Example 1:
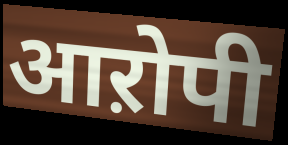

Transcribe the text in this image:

आऱोपी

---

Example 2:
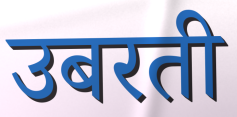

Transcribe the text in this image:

उबरती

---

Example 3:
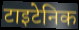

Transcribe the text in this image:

टाइटेनिक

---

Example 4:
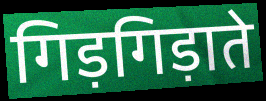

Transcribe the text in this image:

गिड़गिड़ाते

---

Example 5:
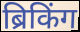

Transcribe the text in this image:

ब्रिकिंग